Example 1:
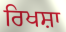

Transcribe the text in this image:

ਰਿਖਸ਼ਾ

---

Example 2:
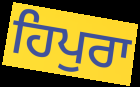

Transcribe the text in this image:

ਹਿਪੁਰਾ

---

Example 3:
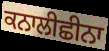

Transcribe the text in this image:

ਕਨਾਲੀਛੀਨਾ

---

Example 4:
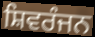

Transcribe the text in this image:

ਸ਼ਿਵਰੰਜਨ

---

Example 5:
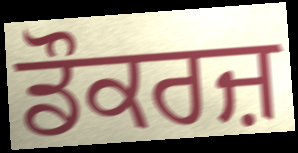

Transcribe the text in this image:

ਡੌਕਰਜ਼